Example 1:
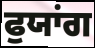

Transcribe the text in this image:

ਫੁਯਾਂਗ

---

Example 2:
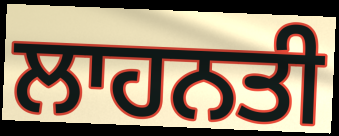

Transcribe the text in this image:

ਲਾਹਨਤੀ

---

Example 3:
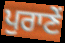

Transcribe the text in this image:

ਪੁਰਾਣੇਂ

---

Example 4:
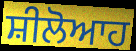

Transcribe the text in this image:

ਸ਼ੀਲੋਆਹ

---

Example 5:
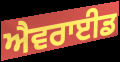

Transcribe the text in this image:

ਐਵਰਾਈਡ